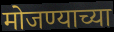
मोजण्याच्या